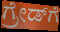
ಗ್ರೇಡ್‌ಗೆ